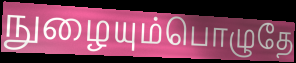
நுழையும்பொழுதே